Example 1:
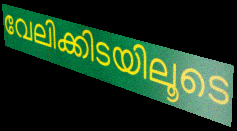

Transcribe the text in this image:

വേലിക്കിടയിലൂടെ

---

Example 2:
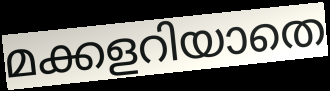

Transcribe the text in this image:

മക്കളറിയാതെ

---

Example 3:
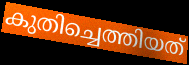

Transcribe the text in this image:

കുതിച്ചെത്തിയത്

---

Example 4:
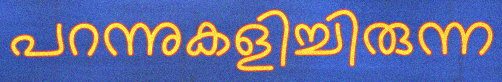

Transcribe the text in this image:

പറന്നുകളിച്ചിരുന്ന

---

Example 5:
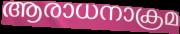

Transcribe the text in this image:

ആരാധനാക്രമ